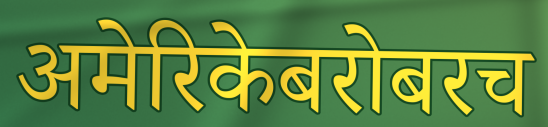
अमेरिकेबरोबरच